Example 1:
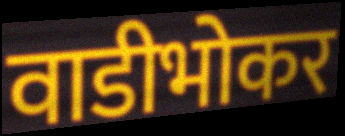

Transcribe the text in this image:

वाडीभोकर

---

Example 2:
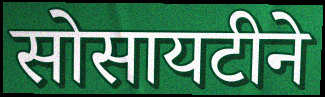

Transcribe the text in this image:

सोसायटीने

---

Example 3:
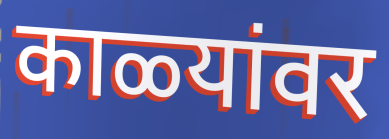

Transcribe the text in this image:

काळ्यांवर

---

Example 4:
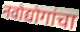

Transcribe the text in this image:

नवोद्योगांचा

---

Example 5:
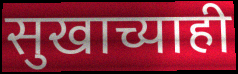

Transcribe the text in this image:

सुखाच्याही